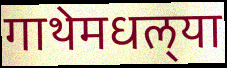
गाथेमधल्या